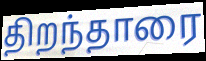
திறந்தாரை